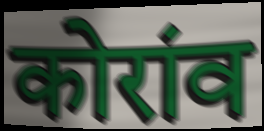
कोरांव